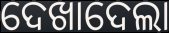
ଦେଖାଦେଲା